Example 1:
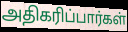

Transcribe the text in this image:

அதிகரிப்பார்கள்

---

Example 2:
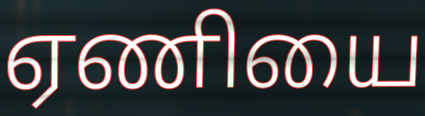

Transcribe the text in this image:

ஏணியை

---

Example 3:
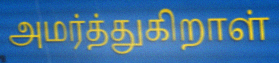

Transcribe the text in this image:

அமர்த்துகிறாள்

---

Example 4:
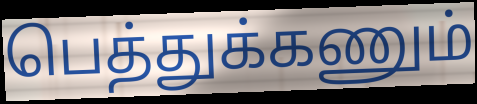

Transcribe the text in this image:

பெத்துக்கணும்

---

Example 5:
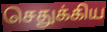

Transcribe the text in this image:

செதுக்கிய